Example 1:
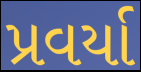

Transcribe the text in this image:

પ્રવર્યા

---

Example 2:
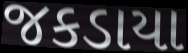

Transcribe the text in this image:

જકડાયા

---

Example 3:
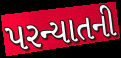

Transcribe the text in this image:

પરન્યાતની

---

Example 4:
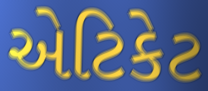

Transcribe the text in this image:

એટિકેટ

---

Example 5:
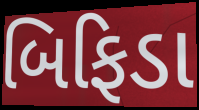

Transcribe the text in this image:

બિફિડા